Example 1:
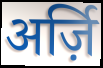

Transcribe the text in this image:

अर्ज़ि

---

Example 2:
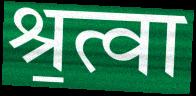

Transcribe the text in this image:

श्र॒त्वा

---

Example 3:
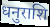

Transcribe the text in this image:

धनुराशि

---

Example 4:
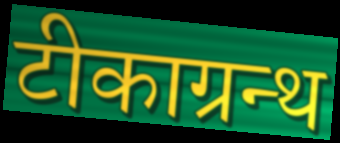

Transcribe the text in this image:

टीकाग्रन्थ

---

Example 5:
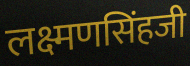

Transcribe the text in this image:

लक्ष्मणसिंहजी